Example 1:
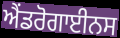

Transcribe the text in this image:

ਐਂਡਰੋਗਾਈਨਸ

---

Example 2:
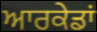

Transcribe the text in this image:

ਆਰਕੇਡਾਂ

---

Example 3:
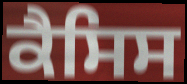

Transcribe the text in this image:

ਕੈਸਿਸ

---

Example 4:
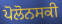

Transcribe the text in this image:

ਪੋਲੋਨਸਕੀ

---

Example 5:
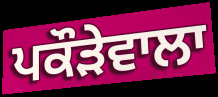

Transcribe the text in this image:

ਪਕੌੜੇਵਾਲਾ